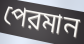
পেরমান